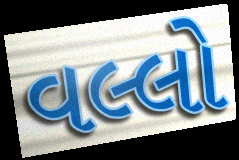
વલ્લો